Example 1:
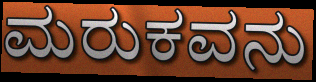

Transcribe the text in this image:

ಮರುಕವನು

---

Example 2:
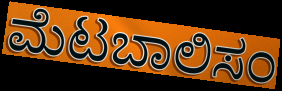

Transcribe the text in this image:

ಮೆಟಬಾಲಿಸಂ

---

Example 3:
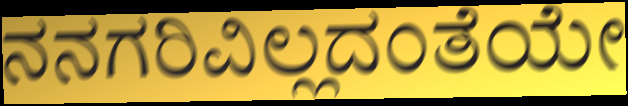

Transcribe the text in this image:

ನನಗರಿವಿಲ್ಲದಂತೆಯೇ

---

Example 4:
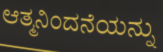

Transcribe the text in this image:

ಆತ್ಮನಿಂದನೆಯನ್ನು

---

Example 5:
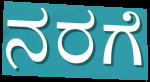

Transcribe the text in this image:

ನರಗೆ